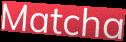
Matcha